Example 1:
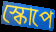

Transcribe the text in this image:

স্কোপে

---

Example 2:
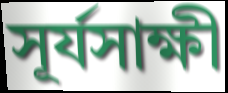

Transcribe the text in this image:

সূর্যসাক্ষী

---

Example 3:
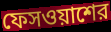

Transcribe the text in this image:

ফেসওয়াশের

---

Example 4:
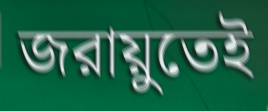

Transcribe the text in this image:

জরায়ুতেই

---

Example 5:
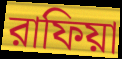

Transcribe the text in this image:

রাফিয়া